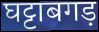
घट्टाबगड़